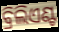
ବ୍ରିଲିଏଣ୍ଟ